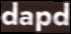
dapd